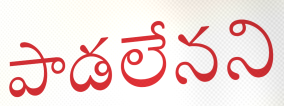
పాడలేనని